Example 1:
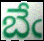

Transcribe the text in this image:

బేఁ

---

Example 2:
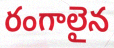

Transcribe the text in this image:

రంగాలైన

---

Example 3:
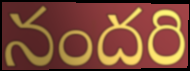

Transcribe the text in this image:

నందరి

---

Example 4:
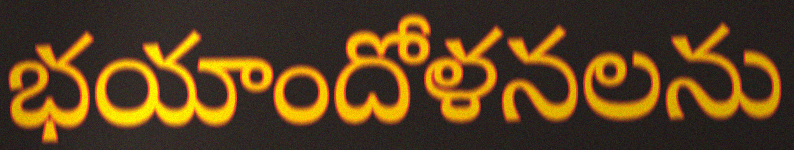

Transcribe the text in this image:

భయాందోళనలను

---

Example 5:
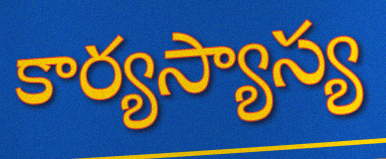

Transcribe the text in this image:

కార్యస్యాస్య